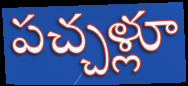
పచ్చళ్లూ